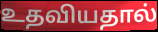
உதவியதால்